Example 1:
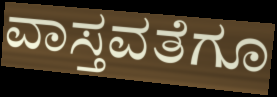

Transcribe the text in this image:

ವಾಸ್ತವತೆಗೂ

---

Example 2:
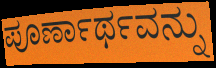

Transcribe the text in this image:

ಪೂರ್ಣಾರ್ಥವನ್ನು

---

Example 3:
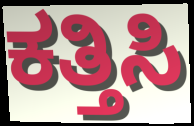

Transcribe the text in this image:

ಕತ್ತಿಸಿ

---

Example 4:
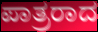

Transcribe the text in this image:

ಪಾತ್ರರಾದ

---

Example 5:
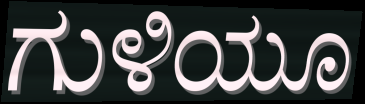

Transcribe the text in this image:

ಗುಳಿಯೂ